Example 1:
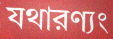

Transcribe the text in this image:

যথারণ্যং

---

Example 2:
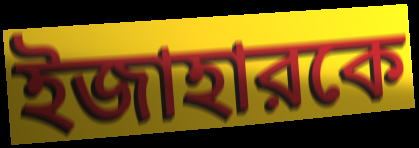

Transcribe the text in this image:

ইজাহারকে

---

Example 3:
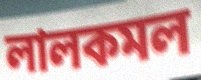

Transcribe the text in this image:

লালকমল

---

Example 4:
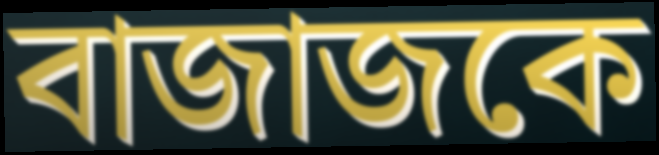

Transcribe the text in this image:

বাজাজকে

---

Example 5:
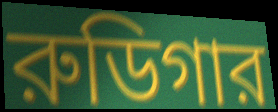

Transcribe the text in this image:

রুডিগার